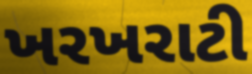
ખરખરાટી